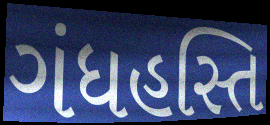
ગંધહસ્તિ